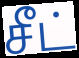
சீட்